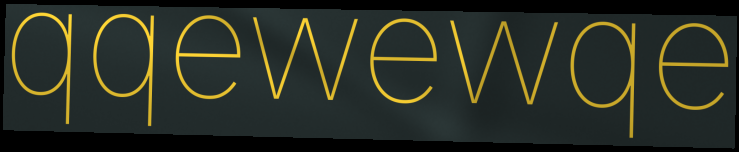
qqewewqe